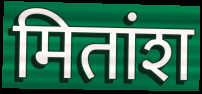
मितांश